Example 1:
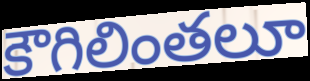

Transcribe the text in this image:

కౌగిలింతలూ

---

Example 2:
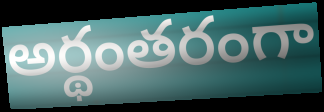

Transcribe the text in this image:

అర్థంతరంగా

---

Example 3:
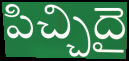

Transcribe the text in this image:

పిచ్చిదై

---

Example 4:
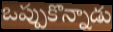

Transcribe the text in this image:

ఒప్పుకొన్నాడు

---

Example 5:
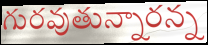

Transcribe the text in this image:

గురవుతున్నారన్న